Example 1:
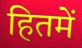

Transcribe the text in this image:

हितमें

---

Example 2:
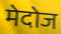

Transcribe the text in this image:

मेदोज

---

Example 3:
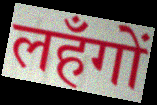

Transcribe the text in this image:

लहँगों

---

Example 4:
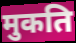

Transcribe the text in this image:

मुकति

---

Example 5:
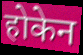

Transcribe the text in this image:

होकेन